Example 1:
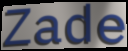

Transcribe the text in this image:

Zade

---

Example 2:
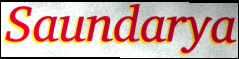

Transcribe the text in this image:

Saundarya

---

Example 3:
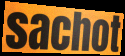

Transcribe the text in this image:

sachot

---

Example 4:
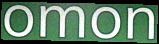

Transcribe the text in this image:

omon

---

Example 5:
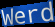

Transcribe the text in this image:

Werd